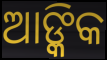
ଆଙ୍କିକ